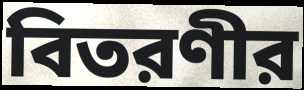
বিতরণীর